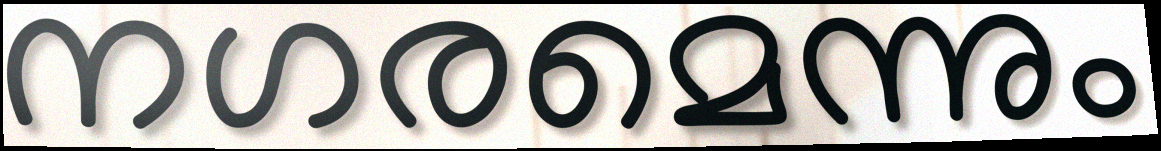
നഗരമെന്നും